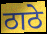
ठाठे